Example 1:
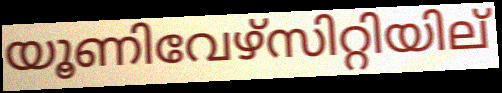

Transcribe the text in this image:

യൂണിവേഴ്സിറ്റിയില്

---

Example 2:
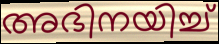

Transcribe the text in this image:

അഭിനയിച്ച്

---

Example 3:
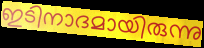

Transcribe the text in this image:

ഇടിനാദമായിരുന്നു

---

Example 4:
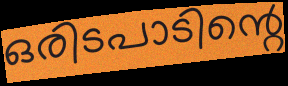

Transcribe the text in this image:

ഒരിടപാടിന്റെ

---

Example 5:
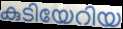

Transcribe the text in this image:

കുടിയേറിയ